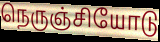
நெருஞ்சியோடு